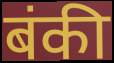
बंकी